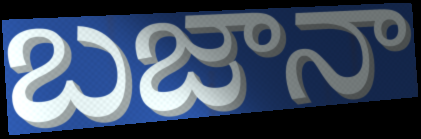
బజానా